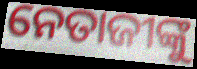
ନେତାଜୀଙ୍କୁ